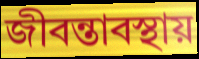
জীবন্তাবস্থায়